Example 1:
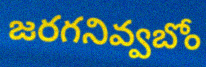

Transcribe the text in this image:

జరగనివ్వబోం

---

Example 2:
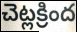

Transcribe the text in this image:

చెట్లక్రింద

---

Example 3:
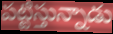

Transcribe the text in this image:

పట్టిస్తున్నాడు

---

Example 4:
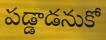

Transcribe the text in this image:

పడ్డాడనుకో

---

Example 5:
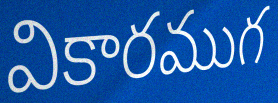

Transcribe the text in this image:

వికారముగ